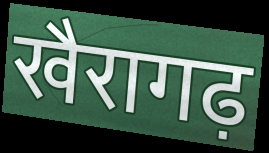
खैरागढ़